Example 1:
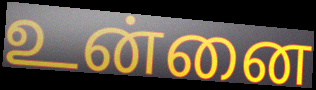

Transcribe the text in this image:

உன்னை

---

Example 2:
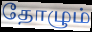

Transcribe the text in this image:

தோழும்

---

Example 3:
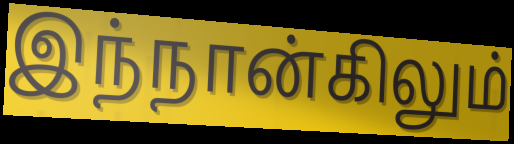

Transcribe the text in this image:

இந்நான்கிலும்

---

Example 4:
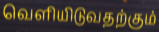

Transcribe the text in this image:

வெளியிடுவதற்கும்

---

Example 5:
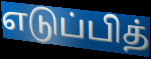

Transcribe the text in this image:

எடுப்பித்